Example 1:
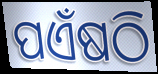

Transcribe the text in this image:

ପଏଁଷଠି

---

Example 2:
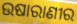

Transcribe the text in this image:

ଉଷାରାଣୀର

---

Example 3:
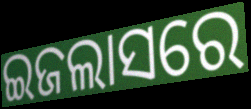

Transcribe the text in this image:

ଇଜଲାସରେ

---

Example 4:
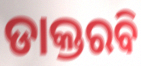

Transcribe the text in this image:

ଡାକ୍ତରବି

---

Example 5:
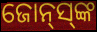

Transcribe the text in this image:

ଜୋନ୍‌ସ୍‌ଙ୍କ